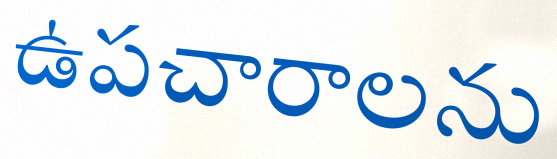
ఉపచారాలను